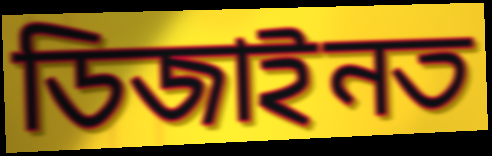
ডিজাইনত